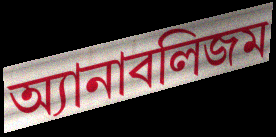
অ্যানাবলিজম